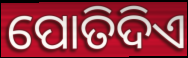
ପୋତିଦିଏ